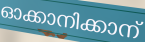
ഓക്കാനിക്കാന്